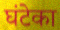
घंटेका